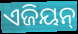
ଏଜିୟନ୍